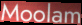
Moolam